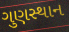
ગુણસ્થાન